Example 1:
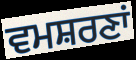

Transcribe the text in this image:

ਵਮਸ਼ਰਣਾਂ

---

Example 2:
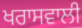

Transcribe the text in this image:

ਖਰਾਸਵਾਲੀ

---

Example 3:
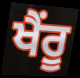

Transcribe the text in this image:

ਖੈਂਰੂ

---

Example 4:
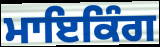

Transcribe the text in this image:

ਮਾਇਕਿੰਗ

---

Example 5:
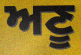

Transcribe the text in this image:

ਅਣੂ